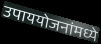
उपाययोजनांमध्ये